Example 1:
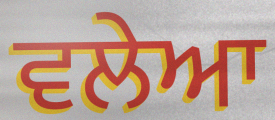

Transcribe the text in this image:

ਵਲੇਆ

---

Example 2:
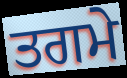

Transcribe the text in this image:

ਤਗਮੇ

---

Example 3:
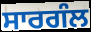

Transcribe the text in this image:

ਸਾਰਗੰਲ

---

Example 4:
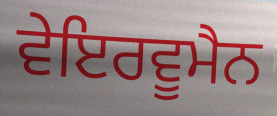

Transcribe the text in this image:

ਵੇਇਰਵੂਮੈਨ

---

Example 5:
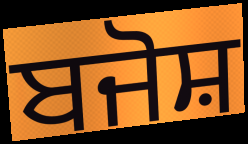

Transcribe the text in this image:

ਬਜੋਸ਼